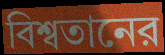
বিশ্বতানের